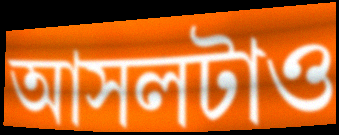
আসলটাও